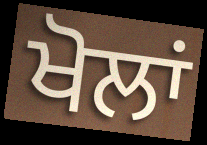
ਖੋਲਾਂ